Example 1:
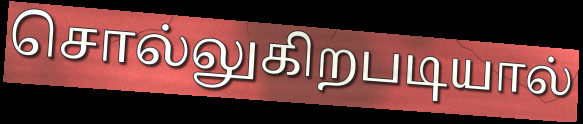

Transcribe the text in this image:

சொல்லுகிறபடியால்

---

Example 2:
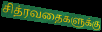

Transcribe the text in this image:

சித்ரவதைகளுக்கு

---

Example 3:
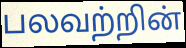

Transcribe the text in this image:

பலவற்றின்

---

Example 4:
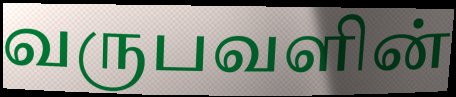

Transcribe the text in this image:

வருபவளின்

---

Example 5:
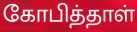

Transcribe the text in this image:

கோபித்தாள்